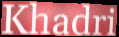
Khadri